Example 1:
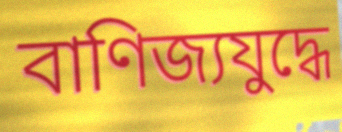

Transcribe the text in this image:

বাণিজ্যযুদ্ধে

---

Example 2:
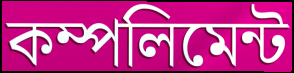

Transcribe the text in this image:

কম্পলিমেন্ট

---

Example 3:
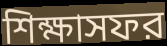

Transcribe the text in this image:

শিক্ষাসফর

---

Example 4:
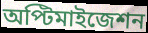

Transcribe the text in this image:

অপ্টিমাইজেশন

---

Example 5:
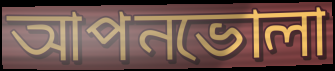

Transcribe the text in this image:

আপনভোলা